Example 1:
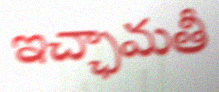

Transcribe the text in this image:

ఇచ్ఛామతీ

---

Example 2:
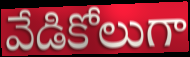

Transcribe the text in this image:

వేడికోలుగా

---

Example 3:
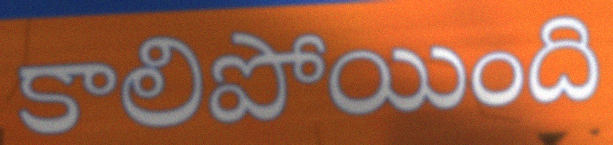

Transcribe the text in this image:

కాలిపోయింది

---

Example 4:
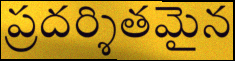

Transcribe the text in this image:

ప్రదర్శితమైన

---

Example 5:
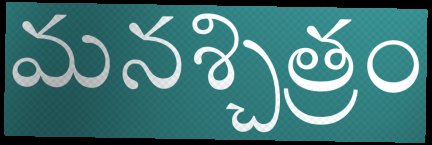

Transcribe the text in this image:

మనశ్చిత్రం